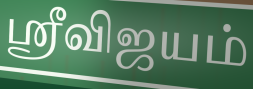
ஸ்ரீவிஜயம்